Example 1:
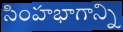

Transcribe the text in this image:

సింహభాగాన్ని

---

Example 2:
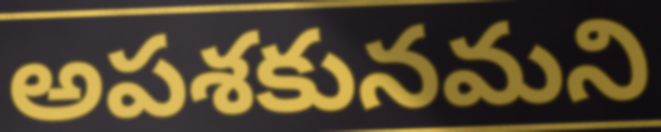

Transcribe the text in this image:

అపశకునమని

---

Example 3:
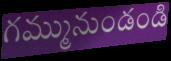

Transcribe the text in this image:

గమ్మునుండండి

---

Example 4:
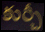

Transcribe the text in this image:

కుర్చీ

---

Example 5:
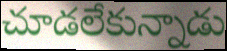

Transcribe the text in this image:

చూడలేకున్నాడు